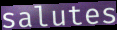
salutes